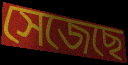
সেজেছে